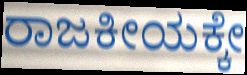
ರಾಜಕೀಯಕ್ಕೇ